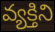
వ్యక్తిని